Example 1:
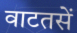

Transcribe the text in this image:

वाटतसें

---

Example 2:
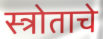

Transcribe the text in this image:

स्त्रोताचे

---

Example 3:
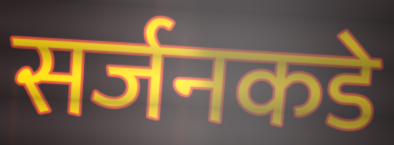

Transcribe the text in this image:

सर्जनकडे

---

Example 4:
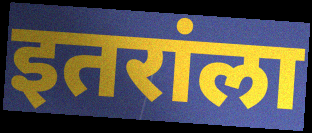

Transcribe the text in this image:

इतरांला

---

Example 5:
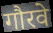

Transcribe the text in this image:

गौरवे